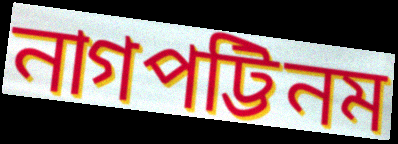
নাগপট্টিনম